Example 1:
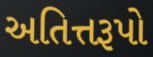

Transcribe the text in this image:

અતિત્તરૂપો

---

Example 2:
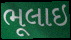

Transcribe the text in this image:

ભૂલાઇ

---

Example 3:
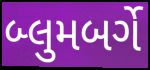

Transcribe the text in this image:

બ્લુમબર્ગે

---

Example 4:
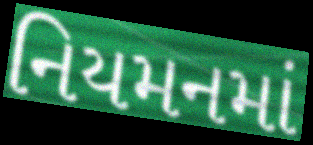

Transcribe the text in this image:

નિયમનમાં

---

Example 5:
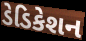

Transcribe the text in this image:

ડેડિકેશન